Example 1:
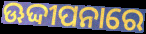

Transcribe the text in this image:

ଊଦ୍ଦୀପନାରେ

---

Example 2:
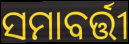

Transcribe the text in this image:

ସମାବର୍ତ୍ତୀ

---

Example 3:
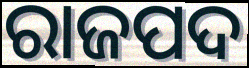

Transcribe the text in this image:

ରାଜପଦ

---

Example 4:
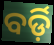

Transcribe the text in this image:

ବର୍ଡ଼ି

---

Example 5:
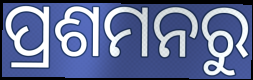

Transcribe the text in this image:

ପ୍ରଶମନରୁ